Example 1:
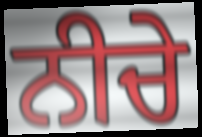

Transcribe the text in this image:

ਨੀਚੇ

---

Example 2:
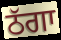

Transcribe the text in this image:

ਠੱਗਾ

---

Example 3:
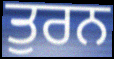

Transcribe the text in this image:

ਤੁਰਨ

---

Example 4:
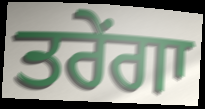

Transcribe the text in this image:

ਤਰੇਂਗਾ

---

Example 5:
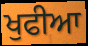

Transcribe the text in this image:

ਖੁਫੀਆ